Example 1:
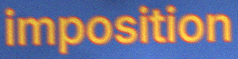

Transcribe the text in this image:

imposition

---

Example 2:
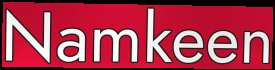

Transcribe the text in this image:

Namkeen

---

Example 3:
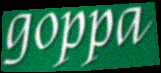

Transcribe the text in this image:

goppa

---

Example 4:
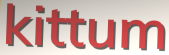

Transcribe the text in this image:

kittum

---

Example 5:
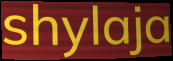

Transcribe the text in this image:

shylaja